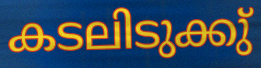
കടലിടുക്കു്